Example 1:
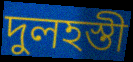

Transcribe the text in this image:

দুলহস্তী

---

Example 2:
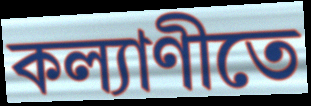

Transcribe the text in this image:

কল্যাণীতে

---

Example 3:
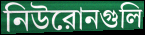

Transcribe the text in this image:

নিউরোনগুলি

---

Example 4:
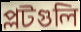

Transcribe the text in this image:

প্লটগুলি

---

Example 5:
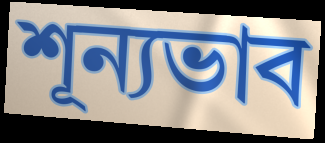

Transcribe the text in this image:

শূন্যভাব